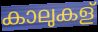
കാലുകള്